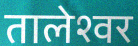
तालेश्वर